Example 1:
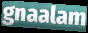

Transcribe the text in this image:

gnaalam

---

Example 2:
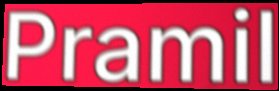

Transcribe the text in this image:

Pramil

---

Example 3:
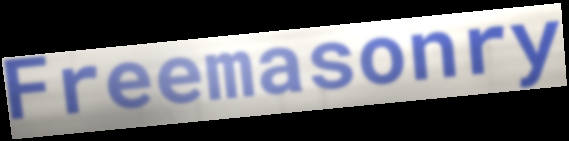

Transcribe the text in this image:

Freemasonry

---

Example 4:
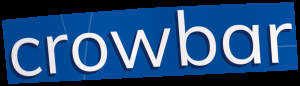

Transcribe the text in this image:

crowbar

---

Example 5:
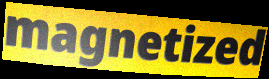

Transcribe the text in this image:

magnetized